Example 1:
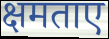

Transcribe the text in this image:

क्षमताए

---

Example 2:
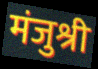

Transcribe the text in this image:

मंजुश्री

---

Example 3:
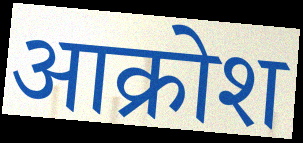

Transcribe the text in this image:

आक्रोश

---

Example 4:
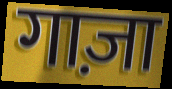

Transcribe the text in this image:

गाज़ा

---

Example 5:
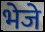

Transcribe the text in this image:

भेजे